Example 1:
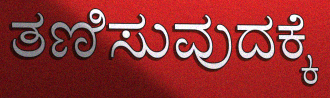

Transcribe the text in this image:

ತಣಿಸುವುದಕ್ಕೆ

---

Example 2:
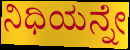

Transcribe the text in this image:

ನಿಧಿಯನ್ನೇ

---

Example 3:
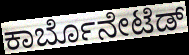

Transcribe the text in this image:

ಕಾರ್ಬೊನೇಟೆಡ್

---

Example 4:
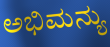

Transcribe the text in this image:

ಅಭಿಮನ್ಯು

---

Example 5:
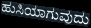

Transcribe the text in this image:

ಹುಸಿಯಾಗುವುದು